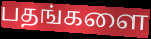
பதங்களை